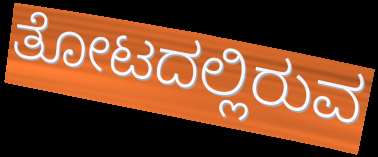
ತೋಟದಲ್ಲಿರುವ